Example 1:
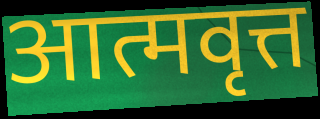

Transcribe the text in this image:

आत्मवृत्त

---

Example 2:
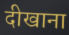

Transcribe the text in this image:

दीखाना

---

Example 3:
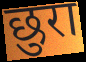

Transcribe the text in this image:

छुरा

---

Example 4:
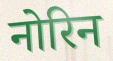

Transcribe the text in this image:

नोरिन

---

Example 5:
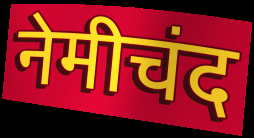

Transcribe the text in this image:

नेमीचंद